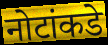
नोटांकडे